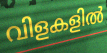
വിളകളിൽ